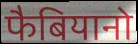
फैबियानो